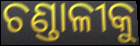
ଚଣ୍ଡାଳୀକୁ